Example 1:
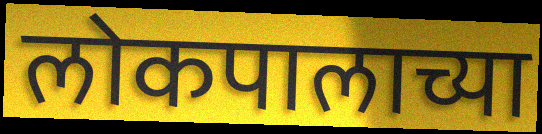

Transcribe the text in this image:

लोकपालाच्या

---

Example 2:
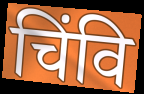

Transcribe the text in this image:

चिंवि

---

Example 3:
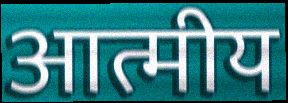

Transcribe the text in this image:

आत्मीय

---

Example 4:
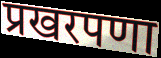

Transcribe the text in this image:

प्रखरपणा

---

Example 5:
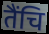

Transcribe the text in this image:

तैंचि